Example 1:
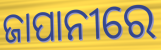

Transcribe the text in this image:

ଜାପାନୀରେ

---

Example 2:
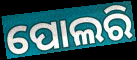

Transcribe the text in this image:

ପୋଲରି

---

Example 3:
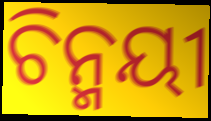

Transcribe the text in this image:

ଚିନ୍ମୟୀ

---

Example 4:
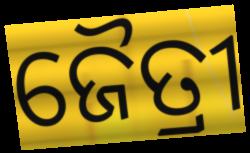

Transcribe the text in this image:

ଜୈତ୍ରୀ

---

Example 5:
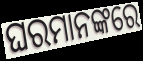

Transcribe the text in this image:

ଘରମାନଙ୍କରେ